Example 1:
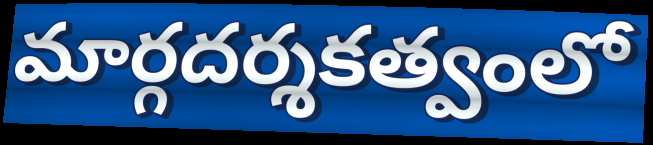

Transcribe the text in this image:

మార్గదర్శకత్వంలో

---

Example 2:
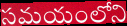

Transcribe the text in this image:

సమయంలోని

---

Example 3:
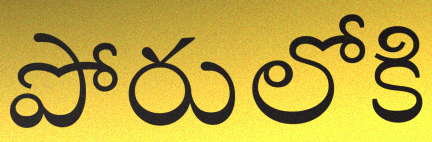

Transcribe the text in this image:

పోరులోకి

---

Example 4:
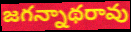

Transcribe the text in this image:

జగన్నాథరావు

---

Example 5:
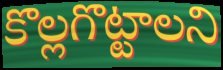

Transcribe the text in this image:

కొల్లగొట్టాలని